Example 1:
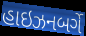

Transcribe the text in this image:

હાઇઝનબર્ગે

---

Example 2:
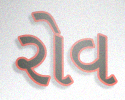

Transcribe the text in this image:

રોવ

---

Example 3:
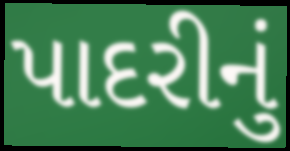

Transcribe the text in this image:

પાદરીનું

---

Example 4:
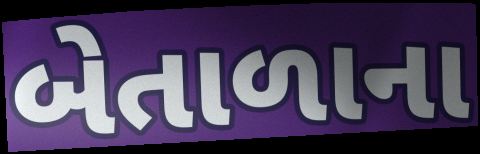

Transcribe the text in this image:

બેતાળાના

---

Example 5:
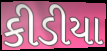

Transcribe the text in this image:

કીડીયા